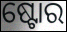
ଷ୍ଟୋର